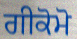
ਗੀਕੋਮੋ